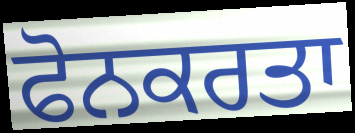
ਫੋਨਕਰਤਾ